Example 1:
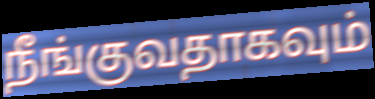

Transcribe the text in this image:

நீங்குவதாகவும்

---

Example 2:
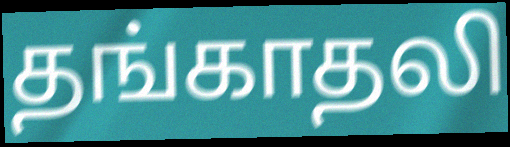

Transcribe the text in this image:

தங்காதலி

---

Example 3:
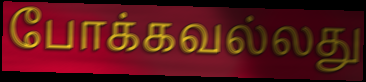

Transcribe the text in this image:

போக்கவல்லது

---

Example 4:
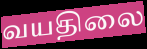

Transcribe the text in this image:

வயதிலை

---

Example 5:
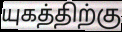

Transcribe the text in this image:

யுகத்திற்கு